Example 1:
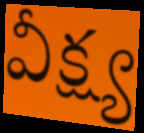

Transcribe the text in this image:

వీక్ష్య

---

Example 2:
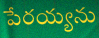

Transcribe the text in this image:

పేరయ్యను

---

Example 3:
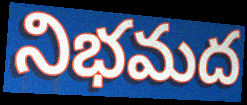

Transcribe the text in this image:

నిభమద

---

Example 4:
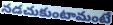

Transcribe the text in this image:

నడచుకుంటామంటే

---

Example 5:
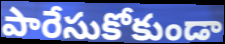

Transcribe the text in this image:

పారేసుకోకుండా